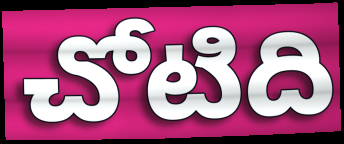
చోటిది